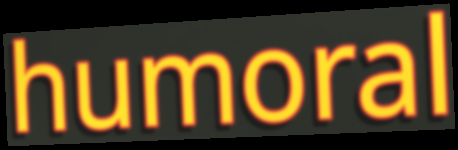
humoral